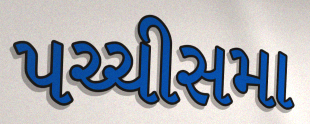
પચ્ચીસમા